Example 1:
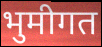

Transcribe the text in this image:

भुमीगत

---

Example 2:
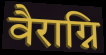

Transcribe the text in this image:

वैराग्नि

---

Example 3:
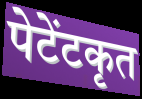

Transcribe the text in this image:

पेटेंटकृत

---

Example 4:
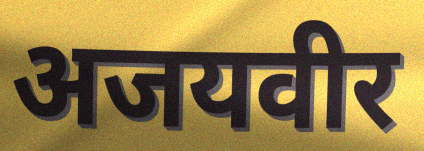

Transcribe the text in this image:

अजयवीर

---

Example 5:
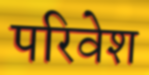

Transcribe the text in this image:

परिवेश